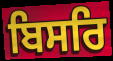
ਬਿਸਰਿ